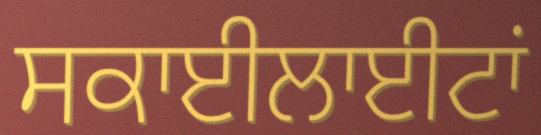
ਸਕਾਈਲਾਈਟਾਂ